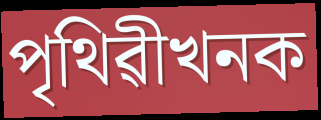
পৃথিৱীখনক